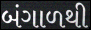
બંગાળથી